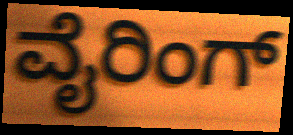
ವೈರಿಂಗ್